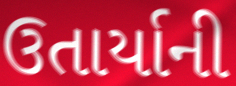
ઉતાર્યાની